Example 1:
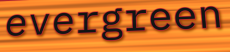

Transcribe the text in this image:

evergreen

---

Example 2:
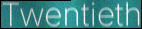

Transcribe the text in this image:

Twentieth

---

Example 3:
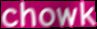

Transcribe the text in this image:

chowk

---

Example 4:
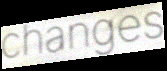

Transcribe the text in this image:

changes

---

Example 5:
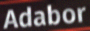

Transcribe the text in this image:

Adabor